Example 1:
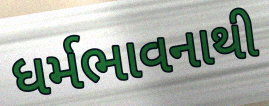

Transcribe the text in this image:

ધર્મભાવનાથી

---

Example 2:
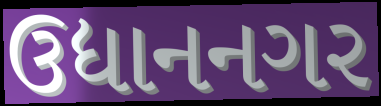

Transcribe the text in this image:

ઉદ્યાનનગર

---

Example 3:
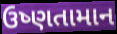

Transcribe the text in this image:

ઉષ્ણતામાન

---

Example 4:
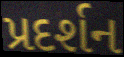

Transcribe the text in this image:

પ્રદર્શન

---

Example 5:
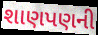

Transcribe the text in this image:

શાણપણની